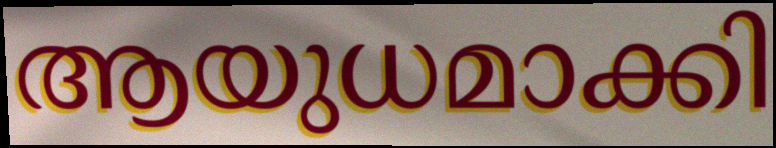
ആയുധമാക്കി